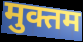
मुक्तम